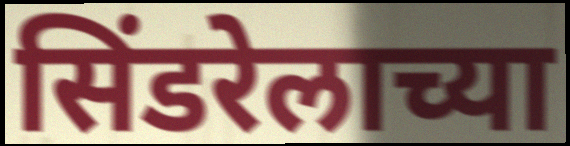
सिंडरेलाच्या